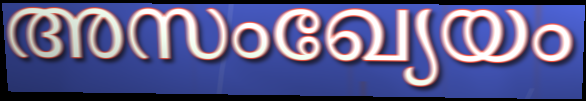
അസംഖ്യേയം